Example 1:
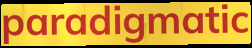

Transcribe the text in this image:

paradigmatic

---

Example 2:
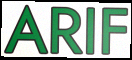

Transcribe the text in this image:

ARIF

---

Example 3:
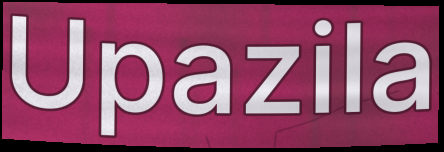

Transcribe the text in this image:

Upazila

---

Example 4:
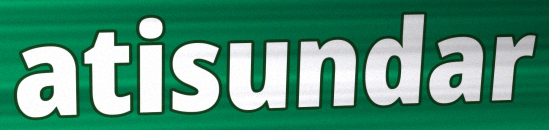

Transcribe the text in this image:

atisundar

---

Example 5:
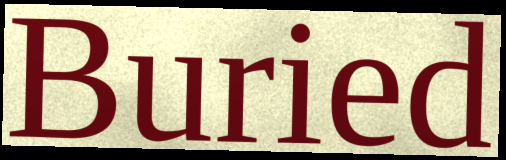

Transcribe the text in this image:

Buried